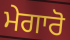
ਮੇਗਾਰੋ